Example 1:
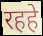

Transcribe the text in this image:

रहहे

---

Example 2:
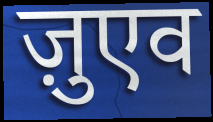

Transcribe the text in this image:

ज़ुएव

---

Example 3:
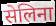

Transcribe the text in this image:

सेलिना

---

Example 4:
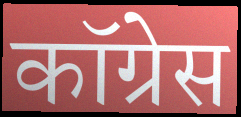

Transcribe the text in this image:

कॉग्रेस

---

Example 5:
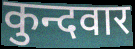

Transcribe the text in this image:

कुन्दवार